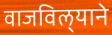
वाजविल्याने